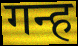
गन्ह